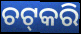
ଚଟ୍‌କରି